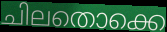
ചിലതൊക്കെ